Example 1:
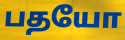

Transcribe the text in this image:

பதயோ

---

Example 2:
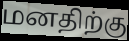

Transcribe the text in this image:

மனதிற்கு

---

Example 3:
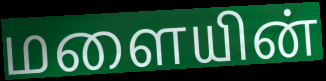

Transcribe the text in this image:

மளையின்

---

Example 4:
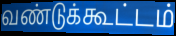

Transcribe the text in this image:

வண்டுக்கூட்டம்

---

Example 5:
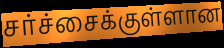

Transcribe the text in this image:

சர்ச்சைக்குள்ளான